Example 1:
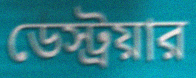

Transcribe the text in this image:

ডেস্ট্রয়ার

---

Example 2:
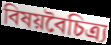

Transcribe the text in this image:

বিষয়বৈচিত্র্য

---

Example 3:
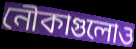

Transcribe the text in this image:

নৌকাগুলোও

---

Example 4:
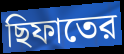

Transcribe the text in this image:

ছিফাতের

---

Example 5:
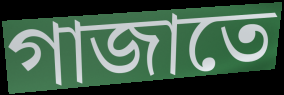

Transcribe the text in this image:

গাজাতে